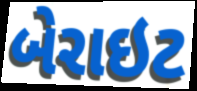
બેરાઇટ